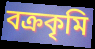
বক্রকৃমি